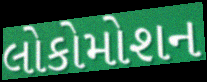
લોકોમોશન